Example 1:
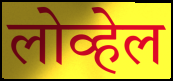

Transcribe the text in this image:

लोव्हेल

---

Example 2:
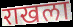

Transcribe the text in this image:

राखला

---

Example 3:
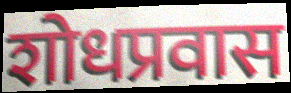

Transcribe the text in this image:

शोधप्रवास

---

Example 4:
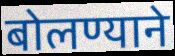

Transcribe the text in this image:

बोलण्याने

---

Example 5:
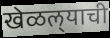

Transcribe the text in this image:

खेळल्याची